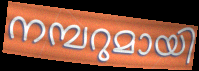
നമ്പറുമായി